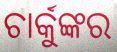
ଚାର୍କୁଙ୍କର